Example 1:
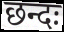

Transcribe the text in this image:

छन्दः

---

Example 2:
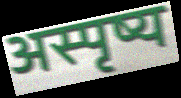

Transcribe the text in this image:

अस्पृष्य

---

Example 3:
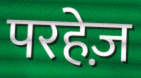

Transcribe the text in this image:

परहेज़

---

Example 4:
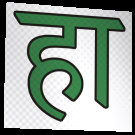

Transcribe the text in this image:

हा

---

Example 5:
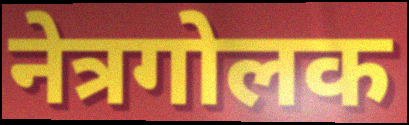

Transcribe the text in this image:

नेत्रगोलक